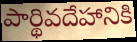
పార్థివదేహానికి